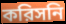
করিসনি